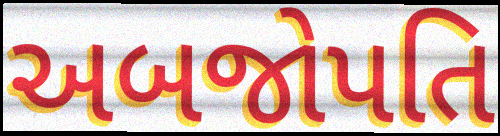
અબજોપતિ